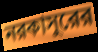
নরকাসুরের